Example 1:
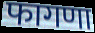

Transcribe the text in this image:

फागणा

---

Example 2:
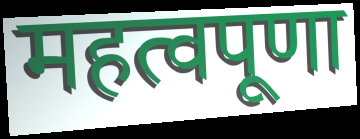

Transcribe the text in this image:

महत्वपूणा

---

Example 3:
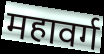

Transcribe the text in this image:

महावर्ग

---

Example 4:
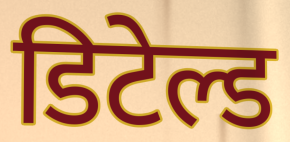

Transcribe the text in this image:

डिटेल्ड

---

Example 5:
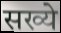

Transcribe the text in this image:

सख्ये